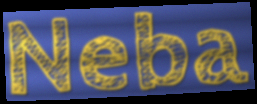
Neba